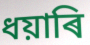
ধয়াৰি